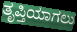
ತೃಪ್ತಿಯಾಗಲು